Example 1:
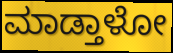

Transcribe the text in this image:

ಮಾಡ್ತಾಳೋ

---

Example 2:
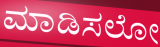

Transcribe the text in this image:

ಮಾಡಿಸಲೋ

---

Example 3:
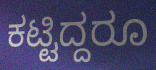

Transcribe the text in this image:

ಕಟ್ಟಿದ್ದರೂ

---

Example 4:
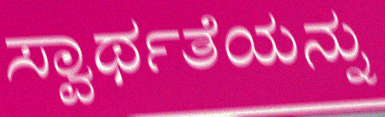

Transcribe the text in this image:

ಸ್ವಾರ್ಥತೆಯನ್ನು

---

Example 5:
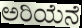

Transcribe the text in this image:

ಅರಿಯೆನೆ